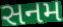
સનમ